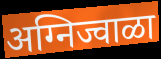
अग्निज्वाळा